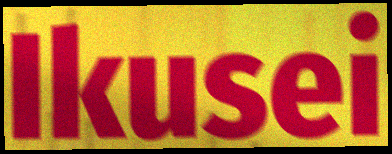
Ikusei